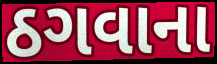
ઠગવાના